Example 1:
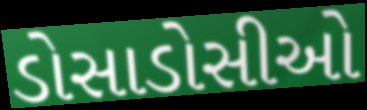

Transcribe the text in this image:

ડોસાડોસીઓ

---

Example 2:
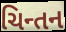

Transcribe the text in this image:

ચિન્તન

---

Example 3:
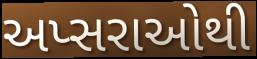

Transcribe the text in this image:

અપ્સરાઓથી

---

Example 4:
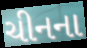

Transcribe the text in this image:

ચીનના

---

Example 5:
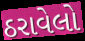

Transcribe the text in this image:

ઠરાવેલો